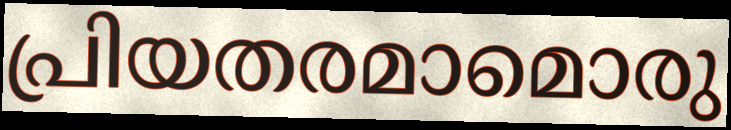
പ്രിയതരമാമൊരു